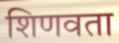
शिणवता